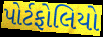
પોર્ટફોલિયો